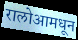
रालोआमधून